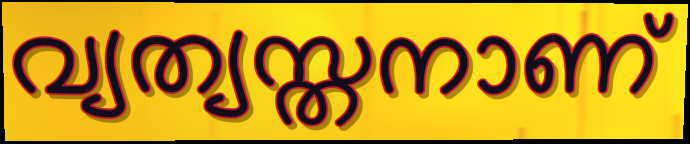
വ്യത്യസ്തനാണ്